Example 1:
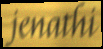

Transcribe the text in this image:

jenathi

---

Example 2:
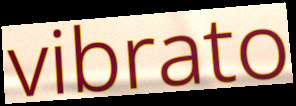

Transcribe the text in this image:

vibrato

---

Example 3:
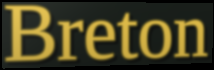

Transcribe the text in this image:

Breton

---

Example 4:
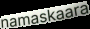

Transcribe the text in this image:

namaskaara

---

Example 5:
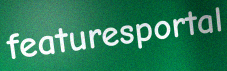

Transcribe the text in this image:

featuresportal